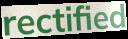
rectified